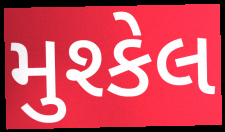
મુશ્કેલ